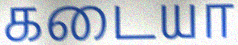
கடையா